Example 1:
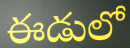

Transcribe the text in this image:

ఈడులో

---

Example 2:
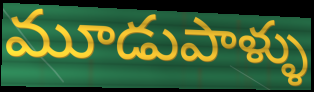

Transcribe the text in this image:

మూడుపాళ్ళు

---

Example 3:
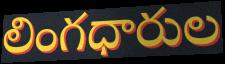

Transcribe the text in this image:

లింగధారుల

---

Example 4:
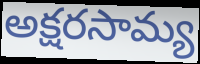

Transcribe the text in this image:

అక్షరసామ్య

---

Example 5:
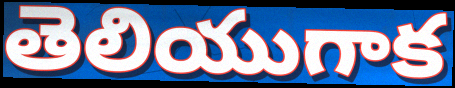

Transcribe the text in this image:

తెలియుగాక